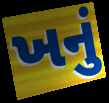
ખનું